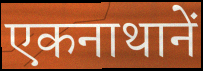
एकनाथानें